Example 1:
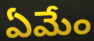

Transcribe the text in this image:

ఏమేం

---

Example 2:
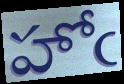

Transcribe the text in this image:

హోఁ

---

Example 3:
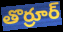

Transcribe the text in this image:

తొర్రూర్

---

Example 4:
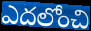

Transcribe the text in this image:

ఎదలోంచి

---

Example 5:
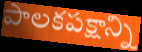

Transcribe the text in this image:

పాలకపక్షాన్ని